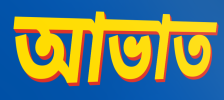
আভাত